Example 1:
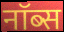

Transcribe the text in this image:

नॉब्स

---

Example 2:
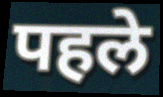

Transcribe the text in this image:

पहले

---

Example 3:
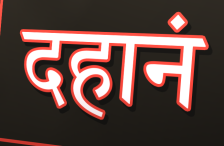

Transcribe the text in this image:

दहानं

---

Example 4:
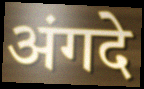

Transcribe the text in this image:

अंगदे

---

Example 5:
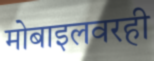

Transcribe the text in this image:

मोबाइलवरही